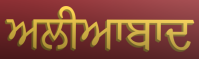
ਅਲੀਆਬਾਦ